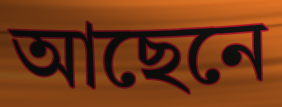
আছেনে